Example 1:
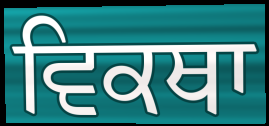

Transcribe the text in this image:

ਵਿਕਥਾ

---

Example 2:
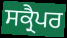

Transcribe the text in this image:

ਸਕ੍ਰੈਪਰ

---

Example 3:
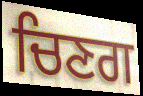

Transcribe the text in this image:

ਚਿਣਗ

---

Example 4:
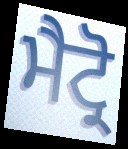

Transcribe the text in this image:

ਮੈਟ੍ਰੋ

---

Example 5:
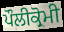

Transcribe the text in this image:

ਪੌਲੀਕ੍ਰੋਮੀ